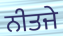
ਨੀਤਜੇ